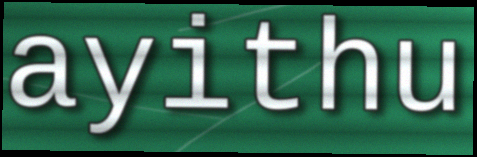
ayithu